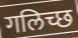
गलिच्छ